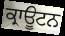
ਕ੍ਰਾਊਟਨ